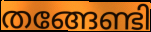
തങ്ങേണ്ടി